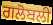
ਗਲੋਬਲੀ